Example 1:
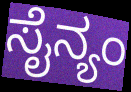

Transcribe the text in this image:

ಸೈನ್ಯಂ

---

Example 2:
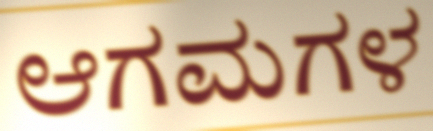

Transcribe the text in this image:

ಆಗಮಗಳ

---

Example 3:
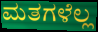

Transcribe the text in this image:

ಮತಗಳೆಲ್ಲ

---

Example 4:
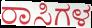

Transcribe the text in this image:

ರಾಸಿಗಳ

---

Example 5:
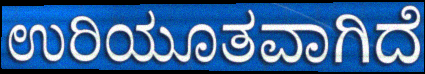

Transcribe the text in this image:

ಉರಿಯೂತವಾಗಿದೆ